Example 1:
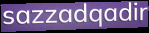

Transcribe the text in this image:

sazzadqadir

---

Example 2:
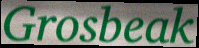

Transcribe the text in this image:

Grosbeak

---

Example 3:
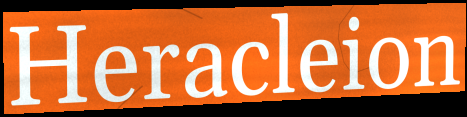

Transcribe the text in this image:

Heracleion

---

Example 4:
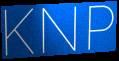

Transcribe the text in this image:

KNP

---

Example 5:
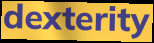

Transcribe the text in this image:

dexterity